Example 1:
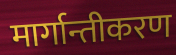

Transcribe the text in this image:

मार्गान्तीकरण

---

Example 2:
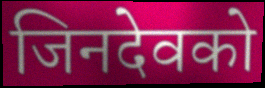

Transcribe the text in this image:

जिनदेवको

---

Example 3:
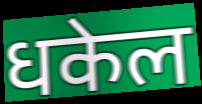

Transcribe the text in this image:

धकेल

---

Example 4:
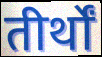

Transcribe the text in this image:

तीर्थों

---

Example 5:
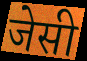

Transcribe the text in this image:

जेसी